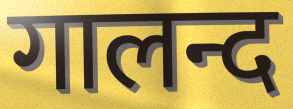
गालन्द